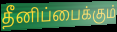
தீனிப்பைக்கும்